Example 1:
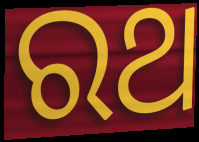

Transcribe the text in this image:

ରଥ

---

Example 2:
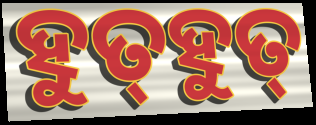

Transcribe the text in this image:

ହୁତ୍‌ହୁତ୍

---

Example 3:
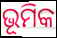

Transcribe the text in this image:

ଭୂମିକ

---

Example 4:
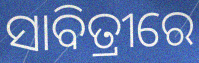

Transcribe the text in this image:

ସାବିତ୍ରୀରେ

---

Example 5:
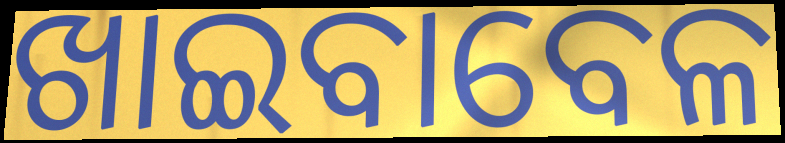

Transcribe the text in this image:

ଖାଇବାବେଳ